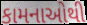
કામનાઓથી